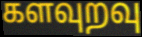
களவுறவு